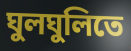
ঘুলঘুলিতে